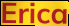
Erica